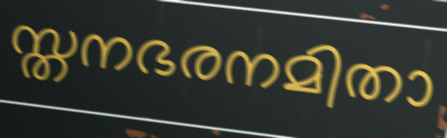
സ്തനഭരനമിതാ